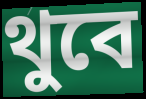
থুবে